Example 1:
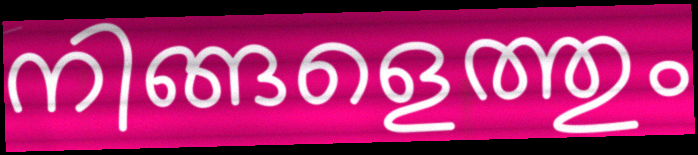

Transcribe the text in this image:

നിങ്ങളെത്തും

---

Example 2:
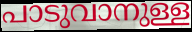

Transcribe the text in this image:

പാടുവാനുള്ള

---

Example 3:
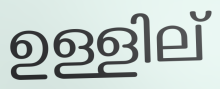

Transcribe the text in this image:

ഉള്ളില്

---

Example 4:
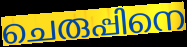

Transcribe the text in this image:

ചെരുപ്പിനെ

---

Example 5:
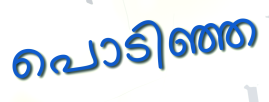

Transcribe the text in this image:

പൊടിഞ്ഞ